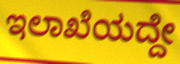
ಇಲಾಖೆಯದ್ದೇ